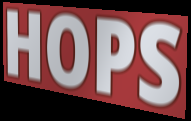
HOPS